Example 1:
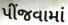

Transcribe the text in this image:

પીંજવામાં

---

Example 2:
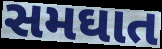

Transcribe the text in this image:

સમઘાત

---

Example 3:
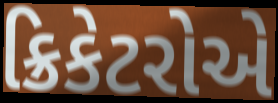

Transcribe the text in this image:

ક્રિકેટરોએ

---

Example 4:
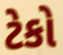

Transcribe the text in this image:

ટેકો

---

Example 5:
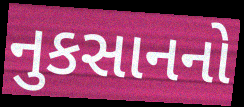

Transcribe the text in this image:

નુકસાનનો